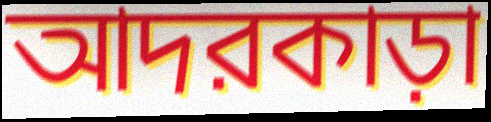
আদরকাড়া